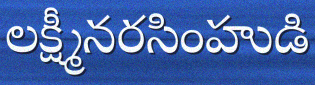
లక్ష్మీనరసింహుడి